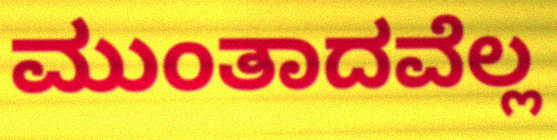
ಮುಂತಾದವೆಲ್ಲ